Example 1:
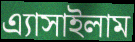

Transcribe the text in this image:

এ্যাসাইলাম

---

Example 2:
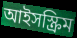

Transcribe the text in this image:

আইসস্ক্রিম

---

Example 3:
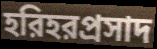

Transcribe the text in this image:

হরিহরপ্রসাদ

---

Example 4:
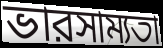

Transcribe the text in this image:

ভারসাম্যতা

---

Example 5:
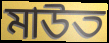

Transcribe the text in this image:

মাউত